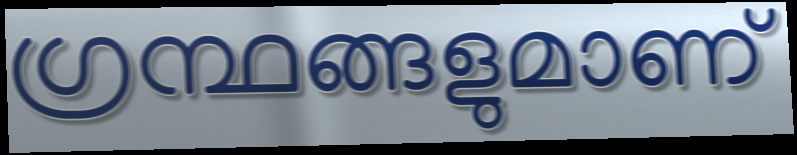
ഗ്രന്ഥങ്ങളുമാണ്